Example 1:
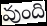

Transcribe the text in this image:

వుంది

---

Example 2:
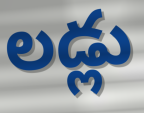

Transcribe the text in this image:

లడ్లు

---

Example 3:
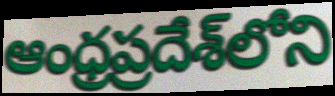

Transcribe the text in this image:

ఆంధ్రప్రదేశ్‌లోని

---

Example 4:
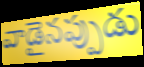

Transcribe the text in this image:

వాడైనప్పుడు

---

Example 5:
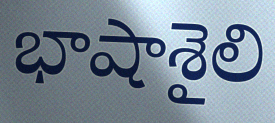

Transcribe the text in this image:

భాషాశైలి